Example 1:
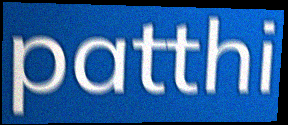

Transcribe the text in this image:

patthi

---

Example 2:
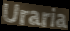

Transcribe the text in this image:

Uraria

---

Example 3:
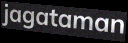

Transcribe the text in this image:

jagataman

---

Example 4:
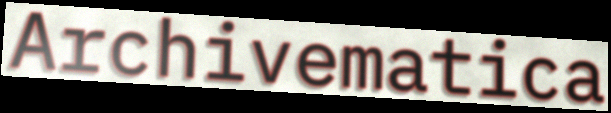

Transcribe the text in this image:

Archivematica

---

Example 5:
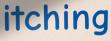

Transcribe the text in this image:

itching